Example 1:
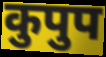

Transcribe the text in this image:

कुपुप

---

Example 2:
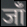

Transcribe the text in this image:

जाँ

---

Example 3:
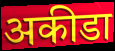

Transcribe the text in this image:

अकीडा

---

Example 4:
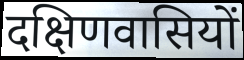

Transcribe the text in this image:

दक्षिणवासियों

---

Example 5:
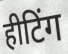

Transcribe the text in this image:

हीटिंग